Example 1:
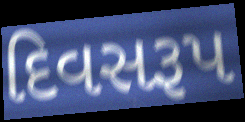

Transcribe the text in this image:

દિવસરૂપ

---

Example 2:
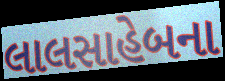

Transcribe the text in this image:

લાલસાહેબના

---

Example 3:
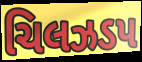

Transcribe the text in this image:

ચિલઝડપ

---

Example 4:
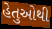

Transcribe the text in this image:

હેતુઓથી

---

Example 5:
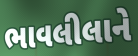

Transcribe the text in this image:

ભાવલીલાને